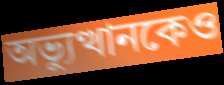
অভ্যুত্থানকেও